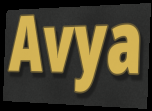
Avya